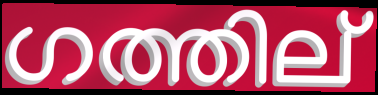
ഗത്തില്